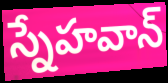
స్నేహవాన్